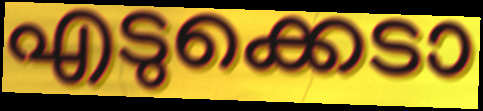
എടുക്കെടാ